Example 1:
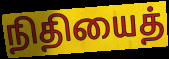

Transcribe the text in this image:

நிதியைத்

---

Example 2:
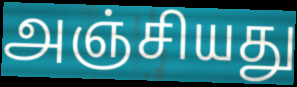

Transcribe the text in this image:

அஞ்சியது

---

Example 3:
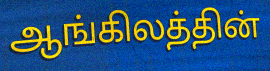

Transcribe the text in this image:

ஆங்கிலத்தின்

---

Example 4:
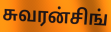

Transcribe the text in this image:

சுவரன்சிங்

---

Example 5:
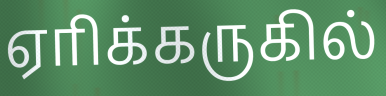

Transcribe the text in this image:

ஏரிக்கருகில்